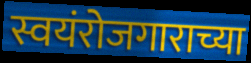
स्वयंरोजगाराच्या